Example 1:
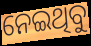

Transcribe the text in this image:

ନେଇଥିବୁ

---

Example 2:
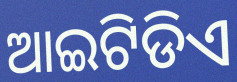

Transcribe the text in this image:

ଆଇଟିଡିଏ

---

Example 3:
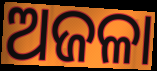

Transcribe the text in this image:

ଅଜଳା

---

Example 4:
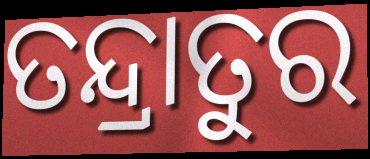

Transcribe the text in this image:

ତନ୍ଦ୍ରାତୁର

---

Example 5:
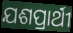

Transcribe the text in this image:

ଯଶପ୍ରାର୍ଥୀ